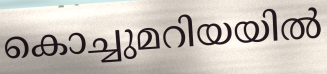
കൊച്ചുമറിയയിൽ